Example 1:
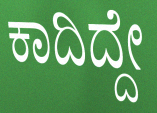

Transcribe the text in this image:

ಕಾದಿದ್ದೇ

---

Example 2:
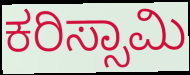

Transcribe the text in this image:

ಕರಿಸ್ಸಾಮಿ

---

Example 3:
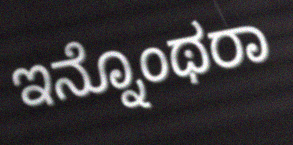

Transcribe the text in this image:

ಇನ್ನೊಂಥರಾ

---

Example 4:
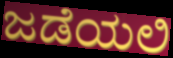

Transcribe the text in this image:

ಜಡೆಯಲಿ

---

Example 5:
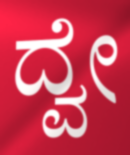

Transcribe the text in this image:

ದ್ವೇ